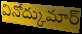
వినోద్కుమార్